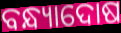
ବନ୍ଧ୍ୟାଦୋଷ